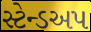
સ્ટેન્ડઅપ